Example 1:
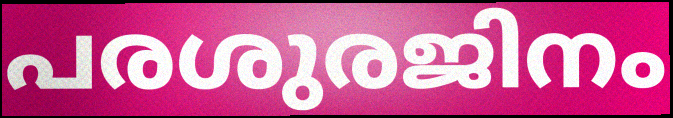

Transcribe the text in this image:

പരശുരജിനം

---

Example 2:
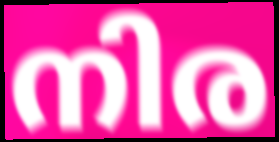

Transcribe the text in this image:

നിര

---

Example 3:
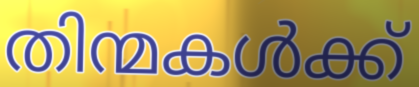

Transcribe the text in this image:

തിന്മകൾക്ക്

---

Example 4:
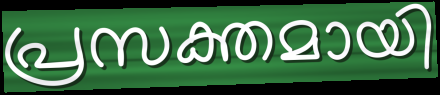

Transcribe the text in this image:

പ്രസക്തമായി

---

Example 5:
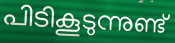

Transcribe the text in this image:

പിടികൂടുന്നുണ്ട്